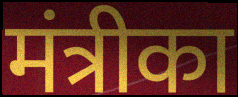
मंत्रीका